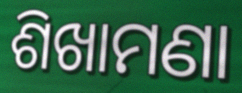
ଶିଖାମଣା